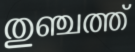
തുഞ്ചത്ത്